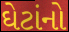
ઘેટાંનો